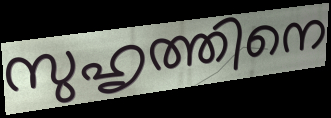
സുഹൃത്തിനെ